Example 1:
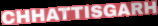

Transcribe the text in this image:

CHHATTISGARH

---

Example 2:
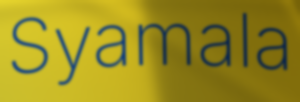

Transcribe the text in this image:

Syamala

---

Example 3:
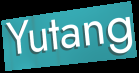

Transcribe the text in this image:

Yutang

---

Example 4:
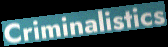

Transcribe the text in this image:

Criminalistics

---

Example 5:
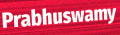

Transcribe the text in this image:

Prabhuswamy